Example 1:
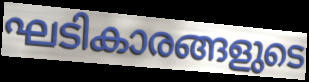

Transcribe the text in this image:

ഘടികാരങ്ങളുടെ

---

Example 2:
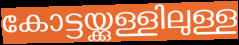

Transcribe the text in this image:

കോട്ടയ്ക്കുള്ളിലുള്ള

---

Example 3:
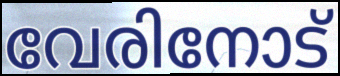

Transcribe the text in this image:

വേരിനോട്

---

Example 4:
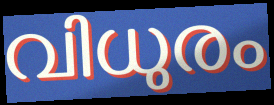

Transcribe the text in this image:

വിധുരം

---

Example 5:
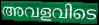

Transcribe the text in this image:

അവളവിടെ